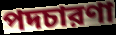
পদচারণা